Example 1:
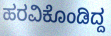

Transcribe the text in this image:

ಹರವಿಕೊಂಡಿದ್ದ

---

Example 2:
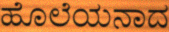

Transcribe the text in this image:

ಹೊಲೆಯನಾದ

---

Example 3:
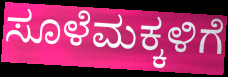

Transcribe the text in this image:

ಸೂಳೆಮಕ್ಕಳಿಗೆ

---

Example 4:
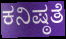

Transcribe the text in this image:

ಕನಿಷ್ಠತೆ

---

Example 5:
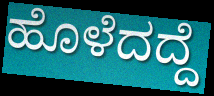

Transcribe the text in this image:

ಹೊಳೆದದ್ದೆ